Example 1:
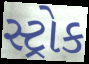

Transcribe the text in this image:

સ્ટ્રોક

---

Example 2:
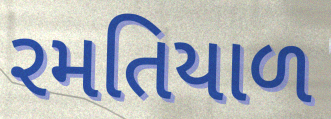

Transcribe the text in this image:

રમતિયાળ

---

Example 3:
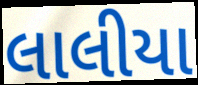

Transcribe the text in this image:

લાલીયા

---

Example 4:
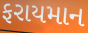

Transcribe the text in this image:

ફરાયમાન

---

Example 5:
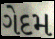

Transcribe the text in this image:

ગેદમ